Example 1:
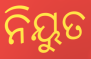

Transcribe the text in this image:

ନିୟୁତ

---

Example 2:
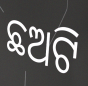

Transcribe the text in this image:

ଛଅଟି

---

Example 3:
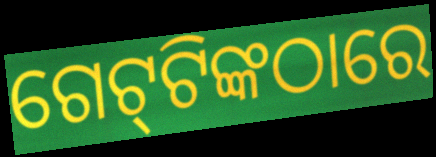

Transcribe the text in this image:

ଗେଟ୍‌ଟିଙ୍କଠାରେ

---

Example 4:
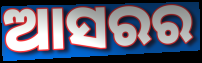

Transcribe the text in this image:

ଆସରର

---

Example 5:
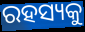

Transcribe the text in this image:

ରହସ୍ୟକୁ